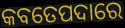
କବତେପଦାରେ